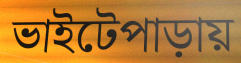
ভাইটেপাড়ায়